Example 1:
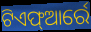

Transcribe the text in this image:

ଟିଏଫ୍ଆର୍ରେ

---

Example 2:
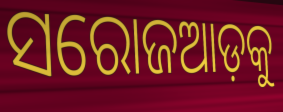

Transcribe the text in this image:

ସରୋଜଆଡ଼କୁ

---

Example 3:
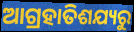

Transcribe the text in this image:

ଆଗ୍ରହାତିଶଯ୍ୟରୁ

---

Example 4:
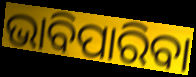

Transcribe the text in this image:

ଭାବିପାରିବା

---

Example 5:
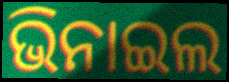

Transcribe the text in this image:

ଭିନାଇଲ